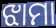
ଝାମା